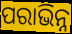
ପରାଭିନ୍ନ